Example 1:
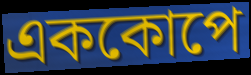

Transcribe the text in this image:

এককোপে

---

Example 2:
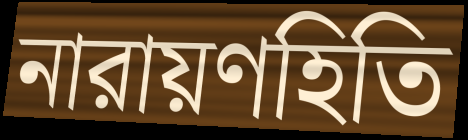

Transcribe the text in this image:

নারায়ণহিতি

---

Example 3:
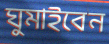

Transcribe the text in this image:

ঘুমাইবেন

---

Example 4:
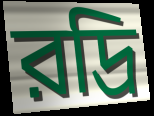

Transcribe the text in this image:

রদ্রি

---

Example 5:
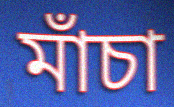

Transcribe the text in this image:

মাঁচা